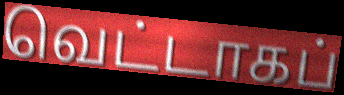
வெட்டாகப்